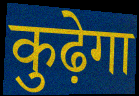
कुढ़ेगा